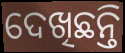
ଦେଖିଛନ୍ତି